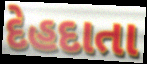
દેહદાતા